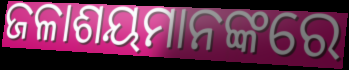
ଜଳାଶୟମାନଙ୍କରେ